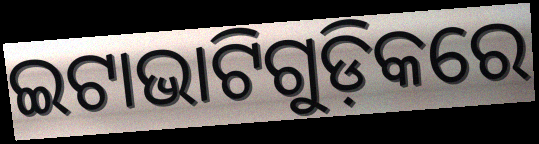
ଇଟାଭାଟିଗୁଡ଼ିକରେ